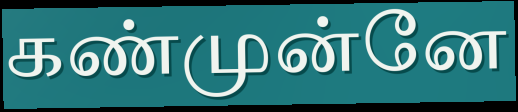
கண்முன்னே